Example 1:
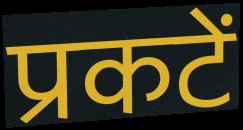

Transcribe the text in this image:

प्रकटें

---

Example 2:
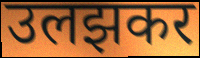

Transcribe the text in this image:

उलझकर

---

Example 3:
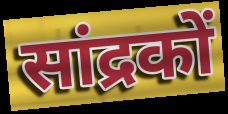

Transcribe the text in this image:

सांद्रकों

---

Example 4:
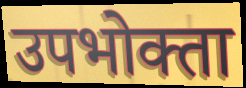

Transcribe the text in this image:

उपभोक्ता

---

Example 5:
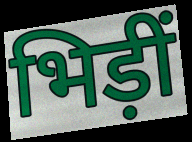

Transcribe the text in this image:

भिड़ीं